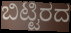
ಬಿಟ್ಟಿರದ